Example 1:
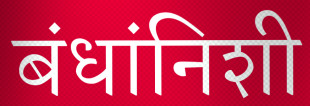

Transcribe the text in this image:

बंधांनिशी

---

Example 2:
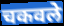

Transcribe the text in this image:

चकवले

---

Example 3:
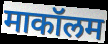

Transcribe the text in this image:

माकॉलम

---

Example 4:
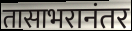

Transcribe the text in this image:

तासाभरानंतर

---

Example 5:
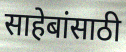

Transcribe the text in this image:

साहेबांसाठी